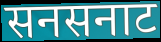
सनसनाट